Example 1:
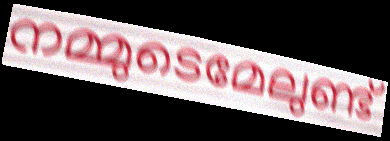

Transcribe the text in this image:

നമ്മുടെമേലുണ്ട്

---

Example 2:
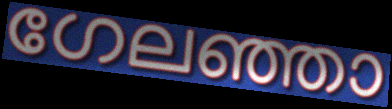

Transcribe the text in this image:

ഗേലഞ്ഞാ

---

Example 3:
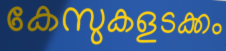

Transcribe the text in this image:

കേസുകളടക്കം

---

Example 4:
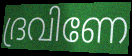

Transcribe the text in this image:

ദ്രവിണേ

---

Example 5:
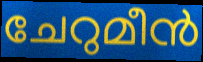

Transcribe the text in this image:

ചേറുമീൻ